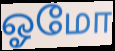
ஓமோ